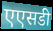
एएसडी